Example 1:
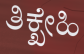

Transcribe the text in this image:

ತಿಕ್ಖೇಹಿ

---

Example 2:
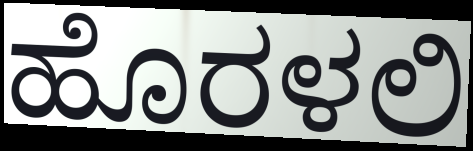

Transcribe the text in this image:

ಹೊರಳಲಿ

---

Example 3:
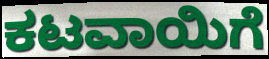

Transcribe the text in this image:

ಕಟವಾಯಿಗೆ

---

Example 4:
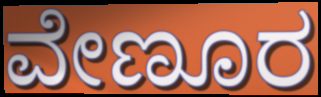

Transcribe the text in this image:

ವೇಣೂರ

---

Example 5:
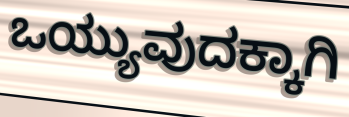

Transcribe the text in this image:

ಒಯ್ಯುವುದಕ್ಕಾಗಿ